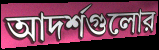
আদর্শগুলোর